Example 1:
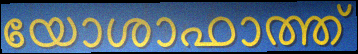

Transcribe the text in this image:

യോശാഫാത്ത്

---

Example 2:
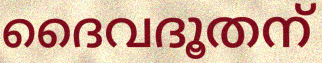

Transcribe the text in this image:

ദൈവദൂതന്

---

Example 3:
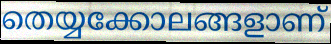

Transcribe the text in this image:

തെയ്യക്കോലങ്ങളാണ്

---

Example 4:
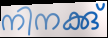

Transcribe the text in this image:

നിനക്കു്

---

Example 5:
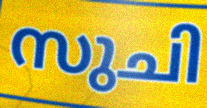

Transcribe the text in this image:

സുചി